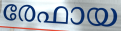
രേഫായ